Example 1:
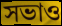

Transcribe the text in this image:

সভাও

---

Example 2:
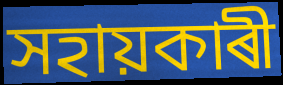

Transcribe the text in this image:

সহায়কাৰী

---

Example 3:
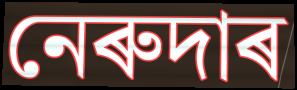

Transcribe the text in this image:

নেৰুদাৰ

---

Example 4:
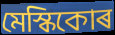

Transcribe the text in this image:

মেস্কিকোৰ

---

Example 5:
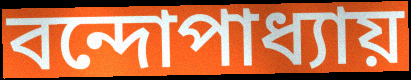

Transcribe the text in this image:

বন্দোপাধ্যায়